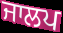
ਜਾਲਪ